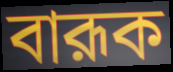
বারূক